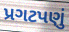
પ્રગટપણું